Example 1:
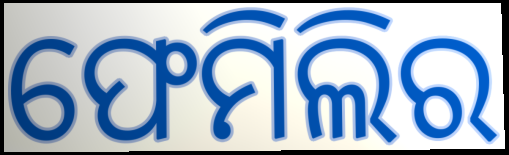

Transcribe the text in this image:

ଫେମିଲିର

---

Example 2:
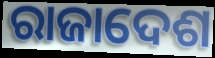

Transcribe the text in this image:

ରାଜାଦେଶ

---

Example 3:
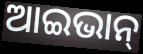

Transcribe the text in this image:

ଆଇଭାନ୍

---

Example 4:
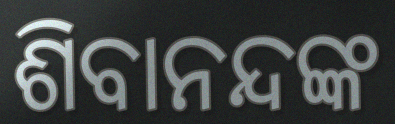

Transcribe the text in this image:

ଶିବାନନ୍ଦଙ୍କ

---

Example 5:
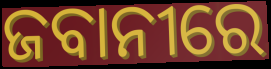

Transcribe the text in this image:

ଜବାନୀରେ